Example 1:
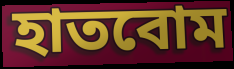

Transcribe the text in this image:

হাতবোম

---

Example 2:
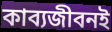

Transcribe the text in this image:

কাব্যজীবনই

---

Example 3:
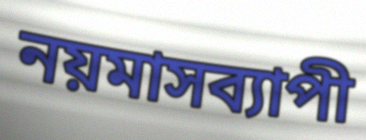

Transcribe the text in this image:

নয়মাসব্যাপী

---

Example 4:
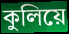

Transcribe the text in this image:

কুলিয়ে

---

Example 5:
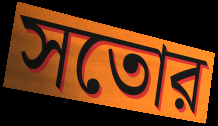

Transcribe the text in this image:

সতোর